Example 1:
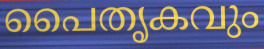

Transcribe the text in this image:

പൈതൃകവും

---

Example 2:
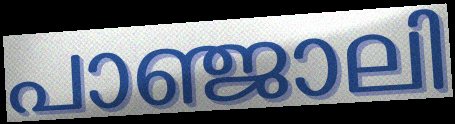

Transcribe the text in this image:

പാഞ്ജാലി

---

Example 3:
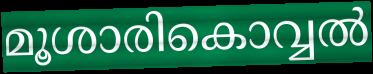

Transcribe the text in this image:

മൂശാരികൊവ്വൽ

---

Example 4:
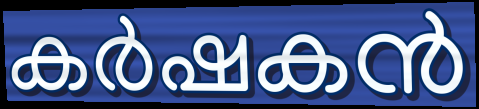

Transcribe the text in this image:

കർഷകൻ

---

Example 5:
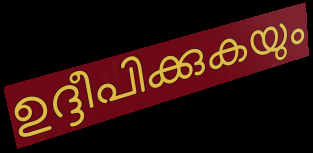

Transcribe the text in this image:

ഉദ്ദീപിക്കുകയും